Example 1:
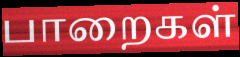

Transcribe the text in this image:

பாறைகள்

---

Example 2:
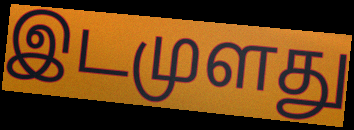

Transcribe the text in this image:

இடமுளது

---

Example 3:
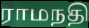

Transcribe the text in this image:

ராமநதி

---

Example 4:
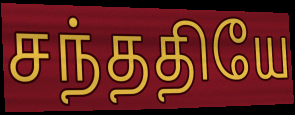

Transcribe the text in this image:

சந்ததியே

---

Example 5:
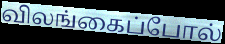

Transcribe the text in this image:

விலங்கைப்போல்